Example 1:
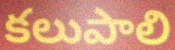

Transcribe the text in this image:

కలుపాలి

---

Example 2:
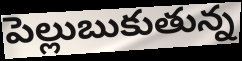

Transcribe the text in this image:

పెల్లుబుకుతున్న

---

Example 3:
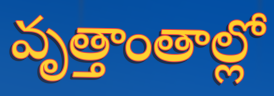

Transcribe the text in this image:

వృత్తాంతాల్లో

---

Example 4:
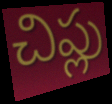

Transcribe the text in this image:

చిప్లు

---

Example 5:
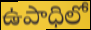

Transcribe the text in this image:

ఉపాధిలో